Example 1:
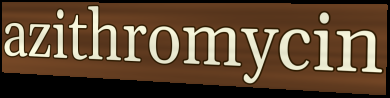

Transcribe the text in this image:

azithromycin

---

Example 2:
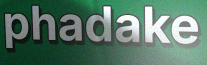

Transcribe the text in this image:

phadake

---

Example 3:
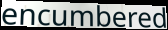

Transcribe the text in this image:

encumbered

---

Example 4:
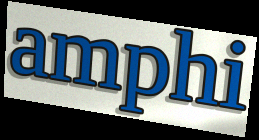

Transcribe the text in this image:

amphi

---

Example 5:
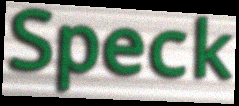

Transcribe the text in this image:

Speck